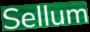
Sellum